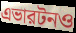
এভারটনও